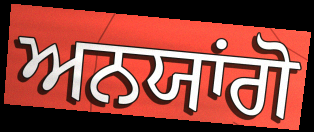
ਅਨਯਾਂਗੋ